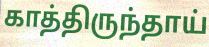
காத்திருந்தாய்